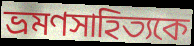
ভ্রমণসাহিত্যকে